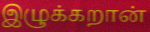
இழுக்கறான்